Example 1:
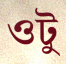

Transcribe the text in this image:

ওটু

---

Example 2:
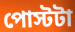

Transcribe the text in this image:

পোস্টটা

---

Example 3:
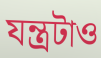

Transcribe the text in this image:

যন্ত্রটাও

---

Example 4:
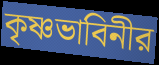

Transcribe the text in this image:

কৃষ্ণভাবিনীর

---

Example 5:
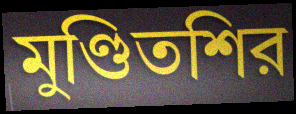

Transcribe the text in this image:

মুণ্ডিতশির